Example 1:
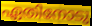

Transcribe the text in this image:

ഏതിനോടു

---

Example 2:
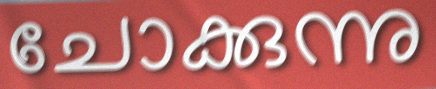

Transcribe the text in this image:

ചോക്കുന്നു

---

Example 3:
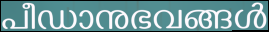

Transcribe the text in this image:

പീഡാനുഭവങ്ങൾ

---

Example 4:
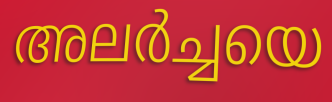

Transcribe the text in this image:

അലർച്ചയെ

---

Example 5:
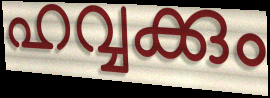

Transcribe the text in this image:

ഹവ്വക്കും